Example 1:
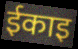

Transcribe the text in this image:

ईकाइ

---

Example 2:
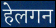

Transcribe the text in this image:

हेलगन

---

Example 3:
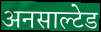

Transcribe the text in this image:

अनसाल्टेड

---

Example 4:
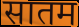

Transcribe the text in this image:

सातम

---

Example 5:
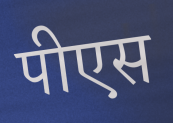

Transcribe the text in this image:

पीएस